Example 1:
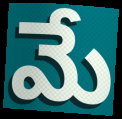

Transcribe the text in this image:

మే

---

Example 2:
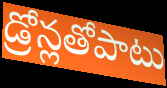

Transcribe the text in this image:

డ్రోన్లతోపాటు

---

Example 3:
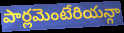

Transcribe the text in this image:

పార్లమెంటేరియన్గా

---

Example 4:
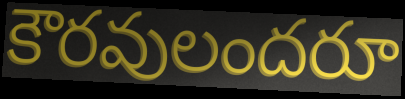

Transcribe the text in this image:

కౌరవులందరూ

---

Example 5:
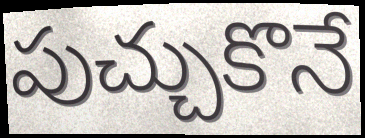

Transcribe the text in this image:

పుచ్చుకొనే